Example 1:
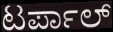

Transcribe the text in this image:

ಟರ್ಪಾಲ್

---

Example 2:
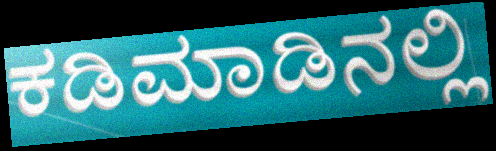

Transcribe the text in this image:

ಕಡಿಮಾಡಿನಲ್ಲಿ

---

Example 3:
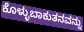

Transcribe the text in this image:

ಕೊಳ್ಳುಬಾಕುತನವನ್ನು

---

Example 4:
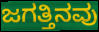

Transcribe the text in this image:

ಜಗತ್ತಿನವು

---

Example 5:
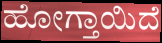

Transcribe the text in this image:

ಹೋಗ್ತಾಯಿದೆ